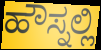
ಹೌಸ್ನಲ್ಲಿ